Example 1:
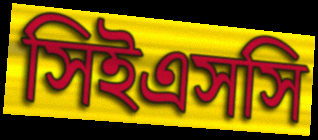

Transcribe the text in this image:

সিইএসসি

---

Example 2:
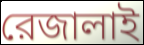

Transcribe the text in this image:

রেজালাই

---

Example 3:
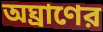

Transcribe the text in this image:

অঘ্রাণের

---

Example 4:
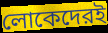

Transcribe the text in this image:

লোকেদেরই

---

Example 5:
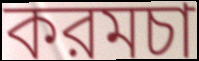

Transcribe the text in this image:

করমচা